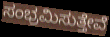
ಸಂಭ್ರಮಿಸುತ್ತೇವೆ